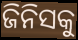
ଜିନିସକୁ